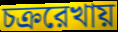
চক্ররেখায়